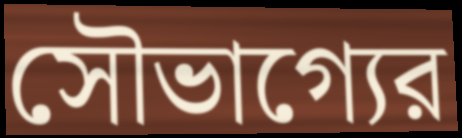
সৌভাগ্যের